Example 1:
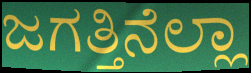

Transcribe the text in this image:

ಜಗತ್ತಿನೆಲ್ಲಾ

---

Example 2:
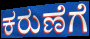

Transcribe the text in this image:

ಕರುಣೆಗೆ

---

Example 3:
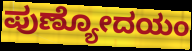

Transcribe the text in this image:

ಪುಣ್ಯೋದಯಂ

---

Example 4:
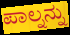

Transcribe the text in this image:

ಪಾಲ್ನನ್ನು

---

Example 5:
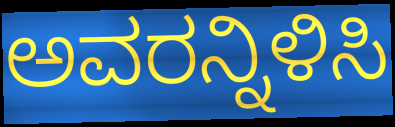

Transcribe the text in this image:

ಅವರನ್ನಿಳಿಸಿ